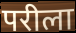
परीला